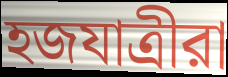
হজযাত্রীরা